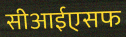
सीआईएसफ